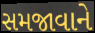
સમજાવાને